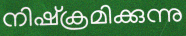
നിഷ്ക്രമിക്കുന്നു